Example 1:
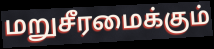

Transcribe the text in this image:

மறுசீரமைக்கும்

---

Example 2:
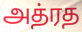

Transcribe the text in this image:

அத்ரத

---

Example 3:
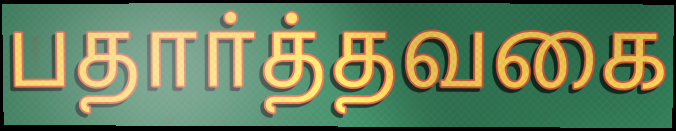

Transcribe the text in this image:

பதார்த்தவகை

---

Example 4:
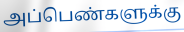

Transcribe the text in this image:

அப்பெண்களுக்கு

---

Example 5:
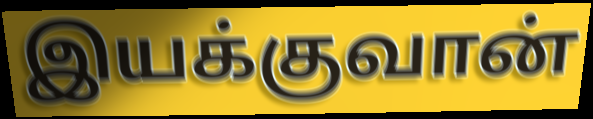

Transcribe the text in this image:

இயக்குவான்